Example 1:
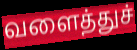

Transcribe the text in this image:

வளைத்துச்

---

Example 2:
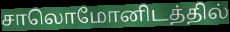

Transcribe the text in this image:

சாலொமோனிடத்தில்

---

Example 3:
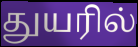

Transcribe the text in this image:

துயரில்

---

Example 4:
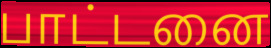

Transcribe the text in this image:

பாட்டனை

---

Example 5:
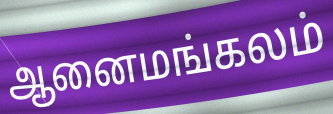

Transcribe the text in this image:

ஆனைமங்கலம்